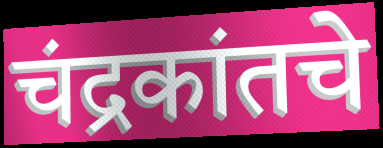
चंद्रकांतचे